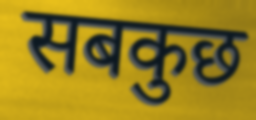
सबकुछ